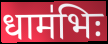
धाम॑भिः